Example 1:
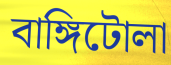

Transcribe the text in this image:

বাঙ্গিটোলা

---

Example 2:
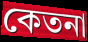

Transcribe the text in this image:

কেতনা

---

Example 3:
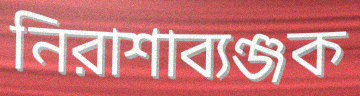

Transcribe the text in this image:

নিরাশাব্যঞ্জক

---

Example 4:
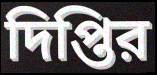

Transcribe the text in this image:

দিপ্তির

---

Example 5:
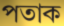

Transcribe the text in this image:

পতাক